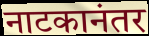
नाटकानंतर